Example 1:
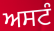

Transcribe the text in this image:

ਅਸਟੰ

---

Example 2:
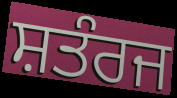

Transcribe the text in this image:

ਸ਼ਤੰਰਜ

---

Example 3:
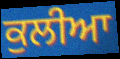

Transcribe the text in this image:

ਕੁਲੀਆ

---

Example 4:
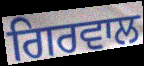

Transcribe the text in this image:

ਗਿਰਵਾਲ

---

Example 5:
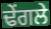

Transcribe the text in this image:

ਢੇਂਗਲੇ